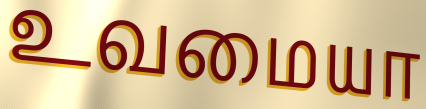
உவமையா